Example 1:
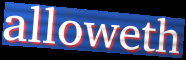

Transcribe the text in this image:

alloweth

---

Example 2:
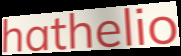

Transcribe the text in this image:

hathelio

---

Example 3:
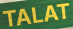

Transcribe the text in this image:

TALAT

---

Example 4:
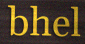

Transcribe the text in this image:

bhel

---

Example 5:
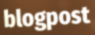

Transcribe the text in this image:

blogpost